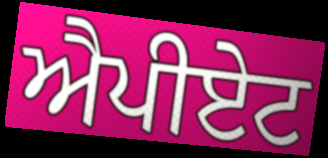
ਐਪੀਏਟ